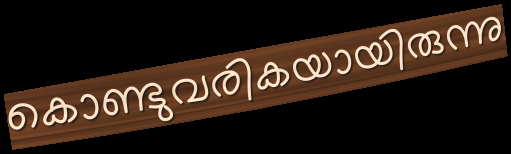
കൊണ്ടുവരികയായിരുന്നു